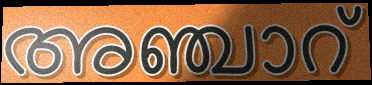
അഞ്ചാറ്